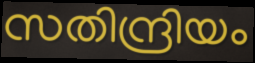
സതിന്ദ്രിയം